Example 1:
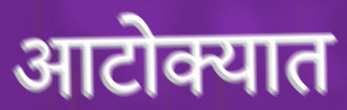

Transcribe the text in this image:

आटोक्यात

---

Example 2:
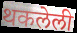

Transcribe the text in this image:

थकलेली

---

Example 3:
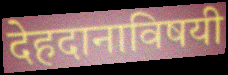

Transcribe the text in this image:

देहदानाविषयी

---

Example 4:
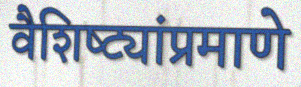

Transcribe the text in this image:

वैशिष्ट्यांप्रमाणे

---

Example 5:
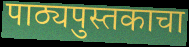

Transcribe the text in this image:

पाठ्यपुस्तकाचा